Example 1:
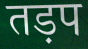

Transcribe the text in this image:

तड़प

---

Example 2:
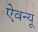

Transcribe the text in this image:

ऐवन्यू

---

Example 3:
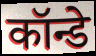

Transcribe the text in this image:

कॉन्डे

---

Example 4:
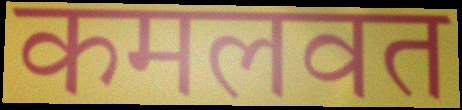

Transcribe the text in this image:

कमलवत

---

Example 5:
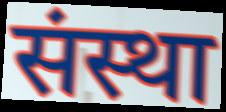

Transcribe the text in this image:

संस्‍था